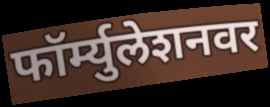
फॉर्म्युलेशनवर